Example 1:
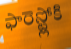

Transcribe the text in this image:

ఫారెస్ట్లోకి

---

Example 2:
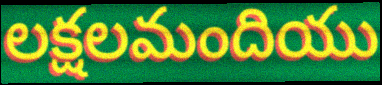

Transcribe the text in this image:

లక్షలమందియు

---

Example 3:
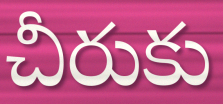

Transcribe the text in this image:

చీరుకు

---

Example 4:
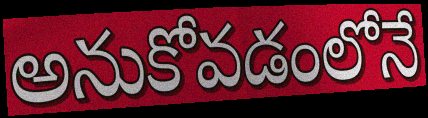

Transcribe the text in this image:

అనుకోవడంలోనే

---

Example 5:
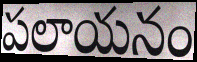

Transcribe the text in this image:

పలాయనం